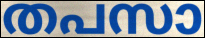
തപസാ